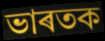
ভাৰতক